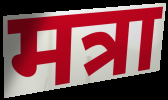
मत्रा